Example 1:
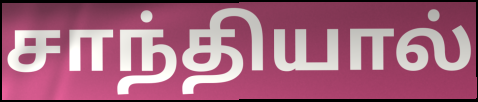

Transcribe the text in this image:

சாந்தியால்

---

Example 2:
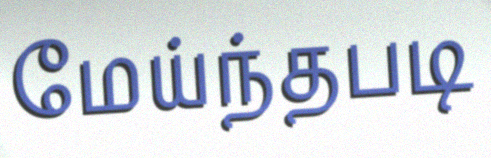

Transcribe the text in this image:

மேய்ந்தபடி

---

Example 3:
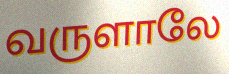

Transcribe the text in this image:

வருளாலே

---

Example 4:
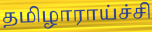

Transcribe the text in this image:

தமிழாராய்ச்சி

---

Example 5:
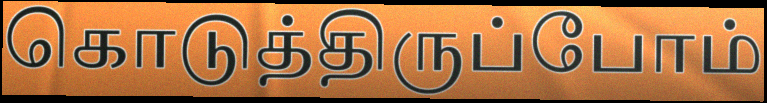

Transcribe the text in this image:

கொடுத்திருப்போம்